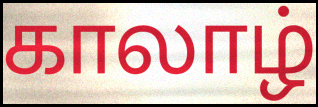
காலாழ்